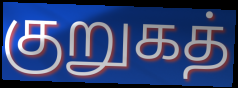
குறுகத்